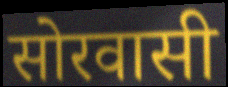
सोरवासी